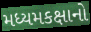
મધ્યમકક્ષાનો